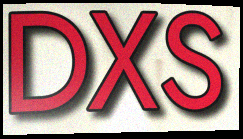
DXS